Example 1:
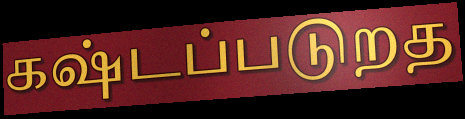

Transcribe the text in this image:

கஷ்டப்படுறத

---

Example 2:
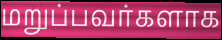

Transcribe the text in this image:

மறுப்பவர்களாக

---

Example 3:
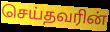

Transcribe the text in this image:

செய்தவரின்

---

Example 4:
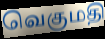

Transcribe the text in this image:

வெகுமதி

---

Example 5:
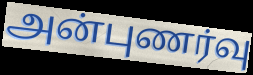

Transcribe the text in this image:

அன்புணர்வு